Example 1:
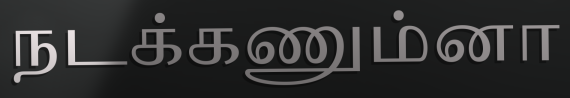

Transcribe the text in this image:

நடக்கணும்னா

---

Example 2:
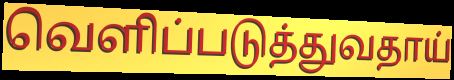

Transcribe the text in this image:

வெளிப்படுத்துவதாய்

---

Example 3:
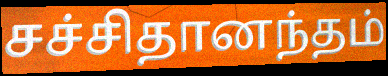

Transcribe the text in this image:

சச்சிதானந்தம்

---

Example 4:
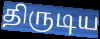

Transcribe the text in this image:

திருடிய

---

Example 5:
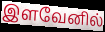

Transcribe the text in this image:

இளவேனில்